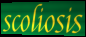
scoliosis